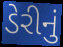
ડેરીનું